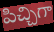
పిచ్చిగా